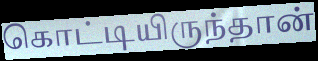
கொட்டியிருந்தான்